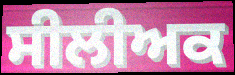
ਸੀਲੀਅਕ